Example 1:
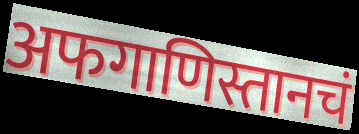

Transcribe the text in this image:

अफगाणिस्तानचं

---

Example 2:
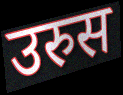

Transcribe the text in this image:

उरुस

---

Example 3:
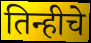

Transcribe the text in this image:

तिन्हीचे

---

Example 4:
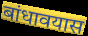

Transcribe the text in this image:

बांधावयास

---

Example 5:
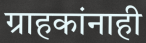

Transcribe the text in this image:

ग्राहकांनाही